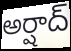
అర్షాద్